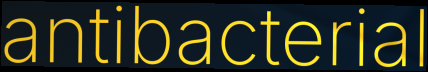
antibacterial